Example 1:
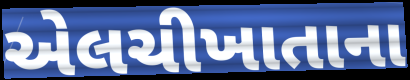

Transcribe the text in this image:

એલચીખાતાના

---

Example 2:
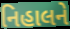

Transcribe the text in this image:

નિહાલને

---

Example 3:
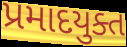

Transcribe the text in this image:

પ્રમાદયુક્ત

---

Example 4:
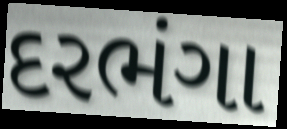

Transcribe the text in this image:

દરભંગા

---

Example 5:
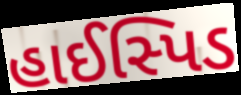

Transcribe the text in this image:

હાઈસ્પિડ